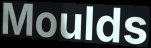
Moulds